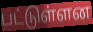
பட்டுள்ளன